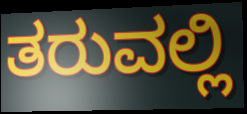
ತರುವಲ್ಲಿ